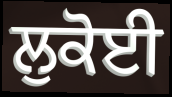
ਲੁਕੋਈ